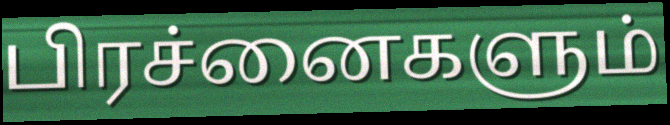
பிரச்னைகளும்